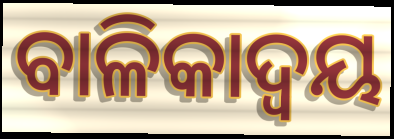
ବାଳିକାଦ୍ୱୟ